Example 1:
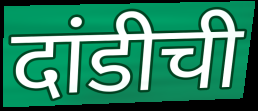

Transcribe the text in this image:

दांडीची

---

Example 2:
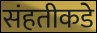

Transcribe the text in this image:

संहतीकडे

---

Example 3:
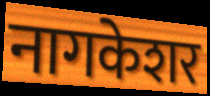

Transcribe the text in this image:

नागकेशर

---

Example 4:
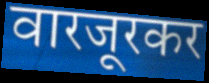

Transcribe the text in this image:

वारजूरकर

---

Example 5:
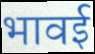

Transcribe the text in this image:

भावई